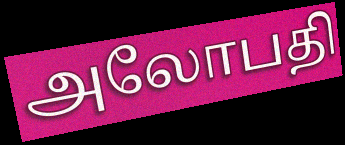
அலோபதி